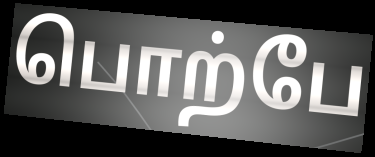
பொற்பே